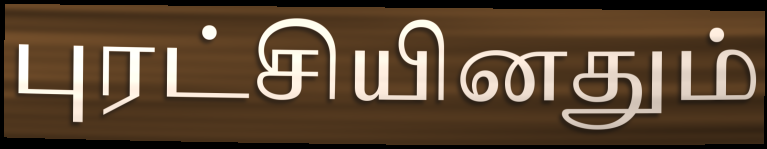
புரட்சியினதும்